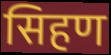
सिहण